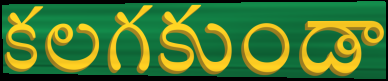
కలగకుండా